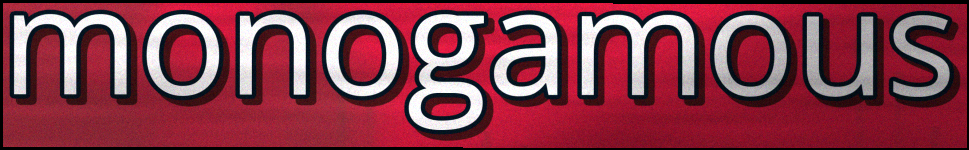
monogamous